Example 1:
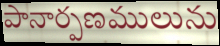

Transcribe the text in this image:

పానార్పణములును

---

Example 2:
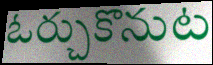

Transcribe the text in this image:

ఓర్చుకొనుట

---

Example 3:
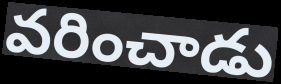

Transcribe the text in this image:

వరించాడు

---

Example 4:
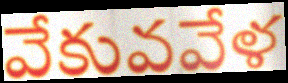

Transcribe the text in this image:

వేకువవేళ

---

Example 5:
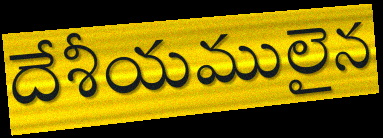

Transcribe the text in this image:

దేశీయములైన